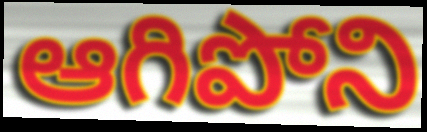
ఆగిపోని